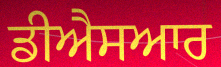
ਡੀਐਸਆਰ